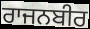
ਰਾਜਨਬੀਰ